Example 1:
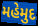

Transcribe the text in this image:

મહેમુદ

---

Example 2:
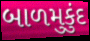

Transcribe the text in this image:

બાળમુકુંદ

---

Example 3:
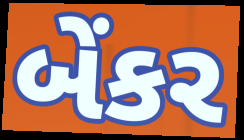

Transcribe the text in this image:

બેંકર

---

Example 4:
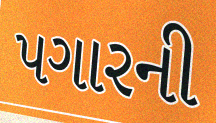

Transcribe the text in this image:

પગારની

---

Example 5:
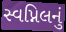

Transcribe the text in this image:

સ્વપ્નિલનું